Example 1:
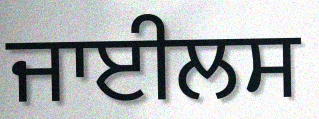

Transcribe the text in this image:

ਜਾਈਲਸ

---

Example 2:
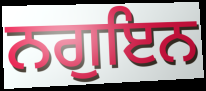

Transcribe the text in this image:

ਨਗੁਇਨ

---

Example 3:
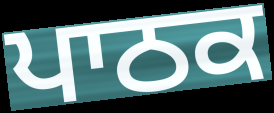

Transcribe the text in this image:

ਪਾਠਕ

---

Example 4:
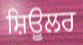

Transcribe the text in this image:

ਸ਼ਿਊਲਰ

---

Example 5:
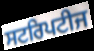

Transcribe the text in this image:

ਸਟਰਿਪਟੀਜ